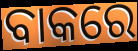
ବାକରେ